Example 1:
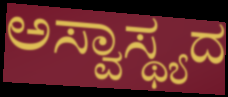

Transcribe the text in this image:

ಅಸ್ವಾಸ್ಥ್ಯದ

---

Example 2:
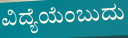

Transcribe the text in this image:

ವಿದ್ಯೆಯೆಂಬುದು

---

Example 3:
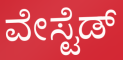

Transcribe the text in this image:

ವೇಸ್ಟೆಡ್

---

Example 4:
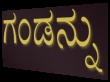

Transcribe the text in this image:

ಗಂಡನ್ನು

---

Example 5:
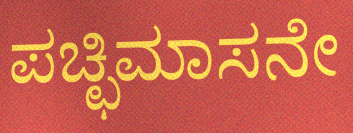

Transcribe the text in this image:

ಪಚ್ಛಿಮಾಸನೇ